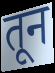
तून